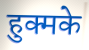
हुक्मके